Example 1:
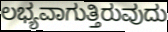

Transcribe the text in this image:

ಲಭ್ಯವಾಗುತ್ತಿರುವುದು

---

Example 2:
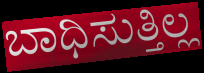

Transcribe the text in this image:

ಬಾಧಿಸುತ್ತಿಲ್ಲ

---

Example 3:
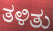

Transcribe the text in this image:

ತಳಿತು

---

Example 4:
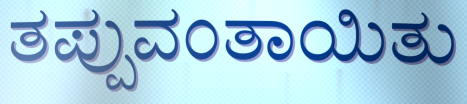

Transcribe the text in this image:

ತಪ್ಪುವಂತಾಯಿತು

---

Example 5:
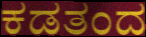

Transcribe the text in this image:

ಕಡತಂದ